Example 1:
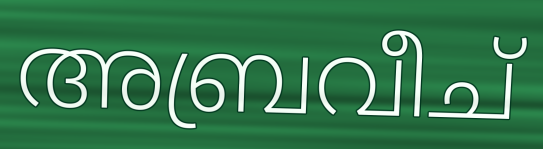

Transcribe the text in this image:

അബ്രവീച്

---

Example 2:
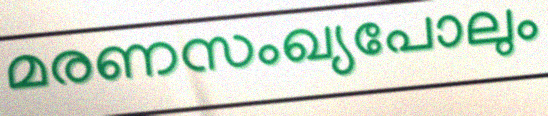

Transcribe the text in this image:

മരണസംഖ്യപോലും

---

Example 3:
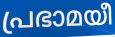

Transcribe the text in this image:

പ്രഭാമയീ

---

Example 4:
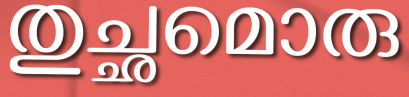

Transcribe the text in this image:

തുച്ഛമൊരു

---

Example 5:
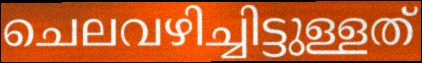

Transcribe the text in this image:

ചെലവഴിച്ചിട്ടുള്ളത്